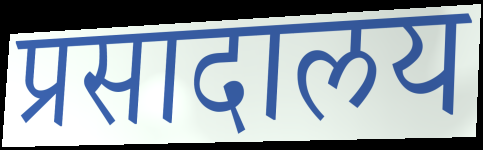
प्रसादालय